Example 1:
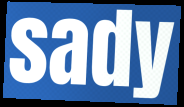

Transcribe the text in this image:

sady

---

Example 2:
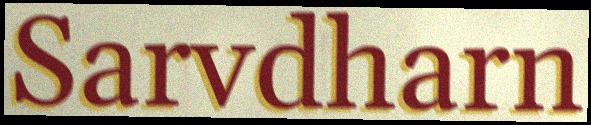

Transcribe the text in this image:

Sarvdharn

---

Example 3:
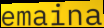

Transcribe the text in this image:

emaina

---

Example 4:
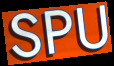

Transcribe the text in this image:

SPU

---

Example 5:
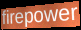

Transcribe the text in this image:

firepower